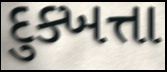
દુક્ખત્તા